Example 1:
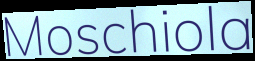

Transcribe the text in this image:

Moschiola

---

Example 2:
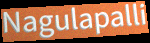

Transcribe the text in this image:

Nagulapalli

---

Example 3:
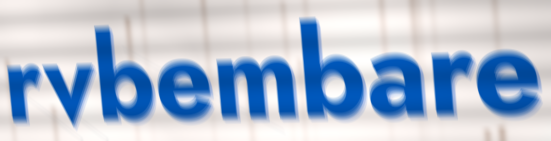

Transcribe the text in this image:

rvbembare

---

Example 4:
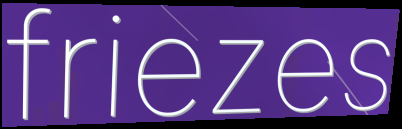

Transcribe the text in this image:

friezes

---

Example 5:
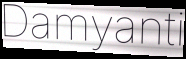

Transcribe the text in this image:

Damyanti